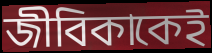
জীবিকাকেই